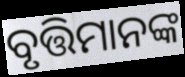
ବୃତ୍ତିମାନଙ୍କ